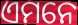
ଏମନେ